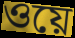
ওয়ে